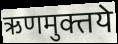
ऋणमुक्तये